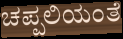
ಚಪ್ಪಲಿಯಂತೆ